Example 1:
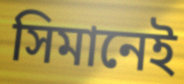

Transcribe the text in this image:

সিমানেই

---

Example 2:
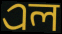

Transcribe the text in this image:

এল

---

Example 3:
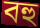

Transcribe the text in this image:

বহু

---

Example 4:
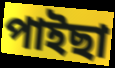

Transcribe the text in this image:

পাইছা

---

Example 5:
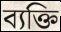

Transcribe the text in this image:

ব্যক্তি